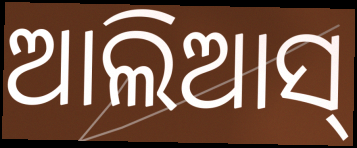
ଆଲିଆସ୍